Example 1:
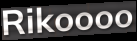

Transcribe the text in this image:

Rikoooo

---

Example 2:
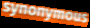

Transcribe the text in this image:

synonymous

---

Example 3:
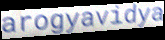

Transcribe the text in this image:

arogyavidya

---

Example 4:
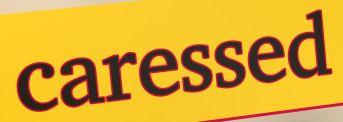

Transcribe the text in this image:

caressed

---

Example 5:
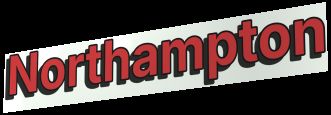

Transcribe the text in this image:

Northampton